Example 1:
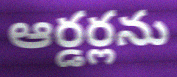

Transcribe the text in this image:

ఆర్డర్లను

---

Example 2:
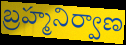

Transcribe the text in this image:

బ్రహ్మనిర్వాణ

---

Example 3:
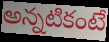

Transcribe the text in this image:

అన్నటికంటే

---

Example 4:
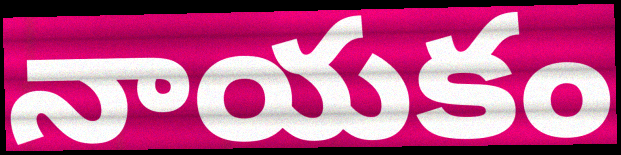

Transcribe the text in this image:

నాయకం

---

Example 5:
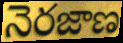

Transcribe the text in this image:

నెరజాణ